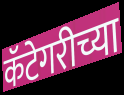
कॅटेगरीच्या